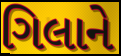
ગિલાને